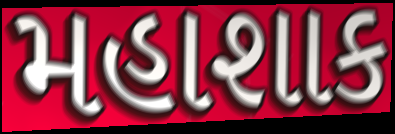
મહાશાક